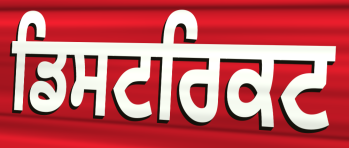
ਡਿਸਟਰਿਕਟ